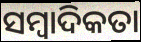
ସମ୍ବାଦିକତା